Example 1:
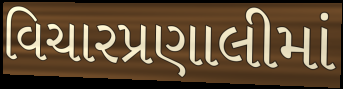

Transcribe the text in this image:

વિચારપ્રણાલીમાં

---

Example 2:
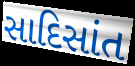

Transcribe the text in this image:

સાદિસાંત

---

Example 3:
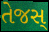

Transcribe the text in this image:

તેજસ્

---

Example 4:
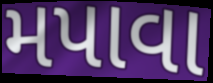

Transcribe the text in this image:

મપાવા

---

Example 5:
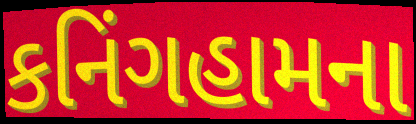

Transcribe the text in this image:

કનિંગહામના